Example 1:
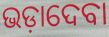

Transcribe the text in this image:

ଭଡ଼ାଦେବା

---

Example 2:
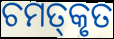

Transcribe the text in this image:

ଚମତ୍‌କୃତ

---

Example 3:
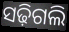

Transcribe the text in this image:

ସଢ଼ିଗଲି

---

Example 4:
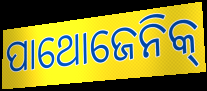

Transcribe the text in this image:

ପାଥୋଜେନିକ୍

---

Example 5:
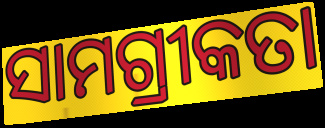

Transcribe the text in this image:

ସାମଗ୍ରୀକତା